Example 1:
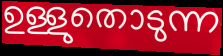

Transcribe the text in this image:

ഉള്ളുതൊടുന്ന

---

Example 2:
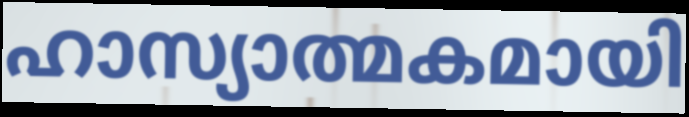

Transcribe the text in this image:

ഹാസ്യാത്മകമായി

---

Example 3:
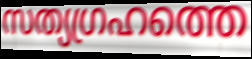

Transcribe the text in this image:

സത്യഗ്രഹത്തെ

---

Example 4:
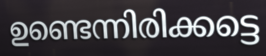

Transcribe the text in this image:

ഉണ്ടെന്നിരിക്കട്ടെ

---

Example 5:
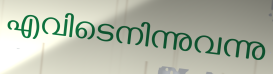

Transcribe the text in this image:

എവിടെനിന്നുവന്നു